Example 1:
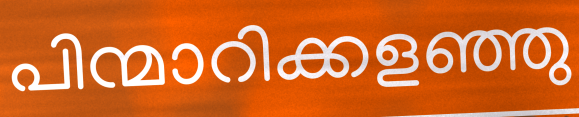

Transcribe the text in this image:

പിന്മാറിക്കളഞ്ഞു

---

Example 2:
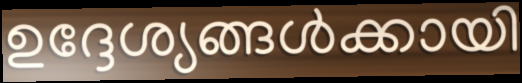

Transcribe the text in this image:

ഉദ്ദേശ്യങ്ങൾക്കായി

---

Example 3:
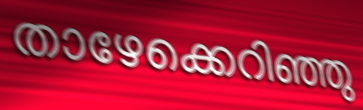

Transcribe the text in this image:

താഴേക്കെറിഞ്ഞു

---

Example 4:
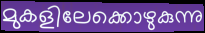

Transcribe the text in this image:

മുകളിലേക്കൊഴുകുന്നു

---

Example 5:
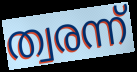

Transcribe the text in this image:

ത്വരന്ന്